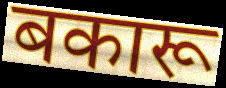
बकारू